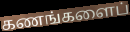
கணங்களைப்